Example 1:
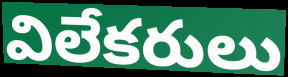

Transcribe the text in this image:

విలేకరులు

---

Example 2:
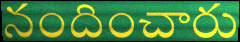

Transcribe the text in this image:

నందించారు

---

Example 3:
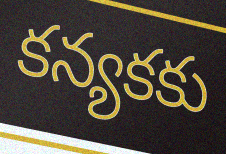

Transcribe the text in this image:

కన్యకకు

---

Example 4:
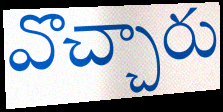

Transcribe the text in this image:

వొచ్చారు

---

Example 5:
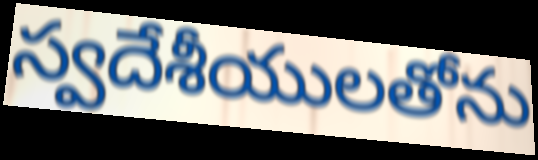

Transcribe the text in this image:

స్వదేశీయులతోను